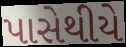
પાસેથીયે